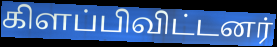
கிளப்பிவிட்டனர்